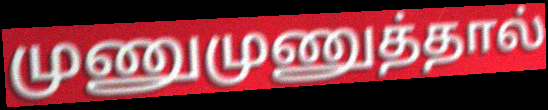
முணுமுணுத்தால்